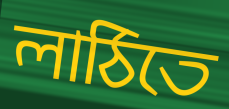
লাঠিতে